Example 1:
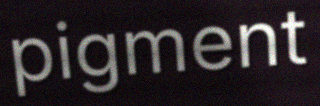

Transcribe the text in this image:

pigment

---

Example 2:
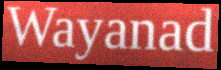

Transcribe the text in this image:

Wayanad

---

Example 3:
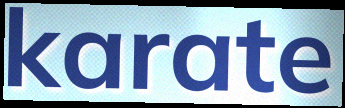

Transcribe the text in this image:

karate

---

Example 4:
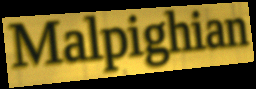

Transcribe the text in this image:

Malpighian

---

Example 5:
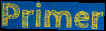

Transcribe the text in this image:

Primer